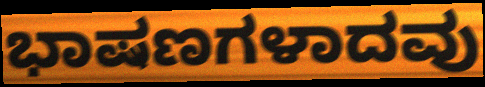
ಭಾಷಣಗಳಾದವು